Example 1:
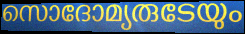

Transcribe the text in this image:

സൊദോമ്യരുടേയും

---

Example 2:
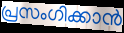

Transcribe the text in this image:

പ്രസംഗിക്കാൻ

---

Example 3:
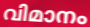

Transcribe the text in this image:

വിമാനം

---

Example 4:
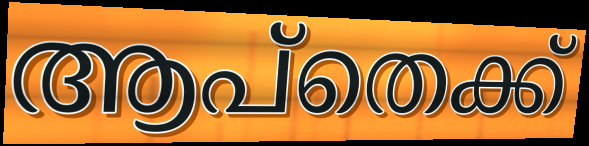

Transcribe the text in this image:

ആപ്തെക്ക്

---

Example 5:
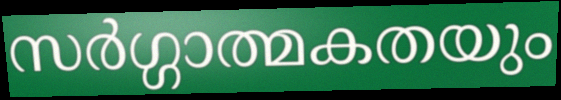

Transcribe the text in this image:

സർഗ്ഗാത്മകതയും